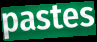
pastes